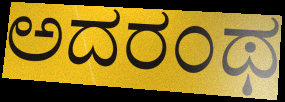
ಅದರಂಥ